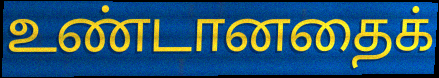
உண்டானதைக்